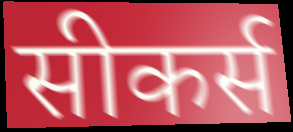
सीकर्स